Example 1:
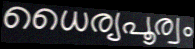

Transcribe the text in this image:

ധൈര്യപൂര്വം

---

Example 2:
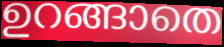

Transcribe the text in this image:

ഉറങ്ങാതെ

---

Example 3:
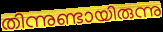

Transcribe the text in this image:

തിന്നുണ്ടായിരുന്നു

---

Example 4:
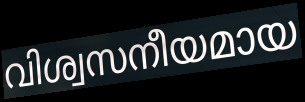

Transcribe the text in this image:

വിശ്വസനീയമായ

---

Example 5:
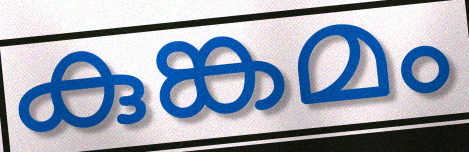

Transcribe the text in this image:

കുങ്കമം